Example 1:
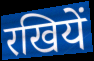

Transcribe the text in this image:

रखियें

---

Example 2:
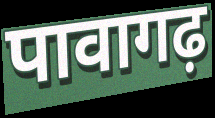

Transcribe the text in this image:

पावागढ़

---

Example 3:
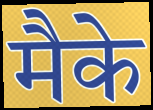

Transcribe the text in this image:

मैके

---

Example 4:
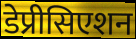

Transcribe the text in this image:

डेप्रीसिएशन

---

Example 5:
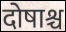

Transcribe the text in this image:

दोषाश्च